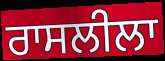
ਰਾਸਲੀਲਾ